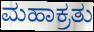
ಮಹಾಕ್ರತು